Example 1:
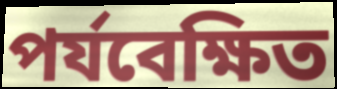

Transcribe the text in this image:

পৰ্যবেক্ষিত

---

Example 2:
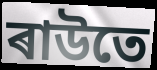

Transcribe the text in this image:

ৰাউতে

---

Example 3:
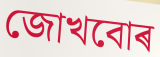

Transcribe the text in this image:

জোখবোৰ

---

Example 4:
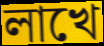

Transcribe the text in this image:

লাখে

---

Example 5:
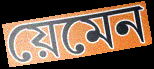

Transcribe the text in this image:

য়েমেন